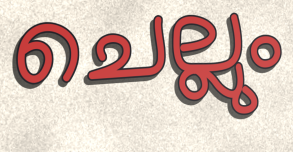
ചെല്ലും